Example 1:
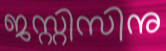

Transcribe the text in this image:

ജസ്റ്റിസിനു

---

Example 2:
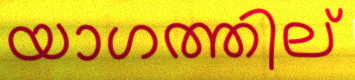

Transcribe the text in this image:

യാഗത്തില്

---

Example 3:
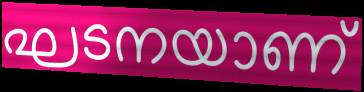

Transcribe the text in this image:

ഘടനയാണ്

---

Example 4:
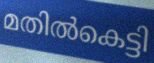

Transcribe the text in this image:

മതിൽകെട്ടി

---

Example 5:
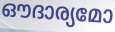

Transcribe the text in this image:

ഔദാര്യമോ